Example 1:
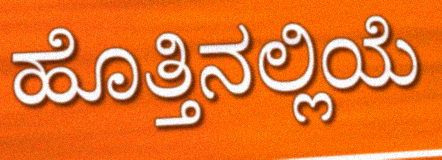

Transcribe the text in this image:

ಹೊತ್ತಿನಲ್ಲಿಯೆ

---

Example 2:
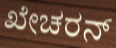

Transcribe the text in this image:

ಖೇಚರನ್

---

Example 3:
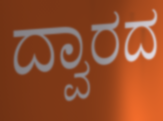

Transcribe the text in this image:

ದ್ವಾರದ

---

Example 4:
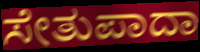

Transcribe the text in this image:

ಸೇತುಪಾದಾ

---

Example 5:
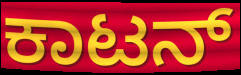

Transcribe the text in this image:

ಕಾಟನ್